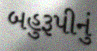
બહુરૂપીનું